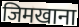
जिमखाना